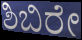
ಶಿಬಿರೇ